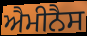
ਐਮੀਨੈਸ